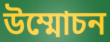
উম্মোচন